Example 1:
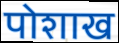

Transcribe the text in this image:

पोशाख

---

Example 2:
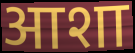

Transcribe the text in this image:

आशा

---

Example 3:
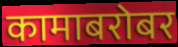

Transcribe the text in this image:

कामाबरोबर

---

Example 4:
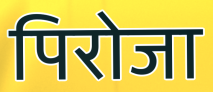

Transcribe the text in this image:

पिरोजा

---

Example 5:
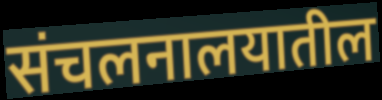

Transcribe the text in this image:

संचलनालयातील